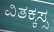
ವಿತಕ್ಕಸ್ಸ